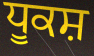
ਧੂਕਸ਼